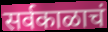
सर्वकाळाचं